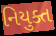
નિયુક્ત